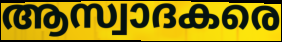
ആസ്വാദകരെ